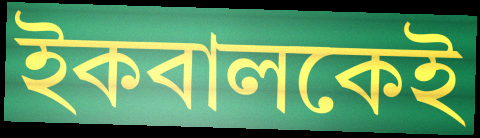
ইকবালকেই